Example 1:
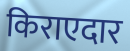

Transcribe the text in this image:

किराएदार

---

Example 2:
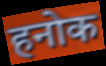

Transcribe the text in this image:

हनोक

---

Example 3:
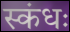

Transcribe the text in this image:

स्कंधः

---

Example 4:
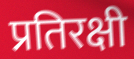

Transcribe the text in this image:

प्रतिरक्षी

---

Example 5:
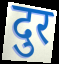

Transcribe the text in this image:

दुर